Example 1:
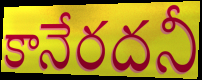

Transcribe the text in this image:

కానేరదనీ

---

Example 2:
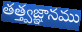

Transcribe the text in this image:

తత్త్వజ్ఞానము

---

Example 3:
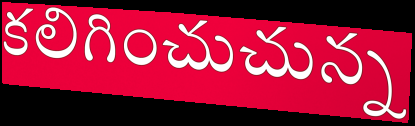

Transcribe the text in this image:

కలిగించుచున్న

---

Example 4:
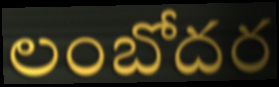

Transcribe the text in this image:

లంబోదర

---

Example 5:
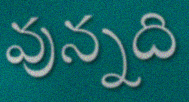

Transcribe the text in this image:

వున్నది